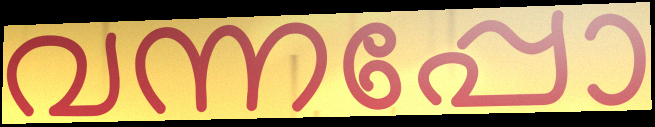
വന്നപ്പോ